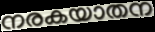
നരകയാതന